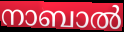
നാബാൽ